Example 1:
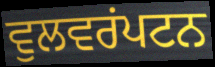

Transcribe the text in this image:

ਵੁਲਵਰਂਪਟਨ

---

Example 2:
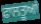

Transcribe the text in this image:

ਫਾਲਤੂਆਂ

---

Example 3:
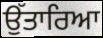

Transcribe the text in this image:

ਉੱਤਾਰਿਆ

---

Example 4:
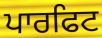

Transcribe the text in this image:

ਪਾਰਫਿਟ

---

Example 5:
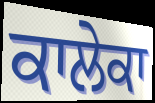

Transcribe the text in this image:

ਕਾਲੇਕਾ